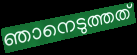
ഞാനെടുത്തത്